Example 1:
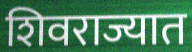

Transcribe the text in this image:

शिवराज्यात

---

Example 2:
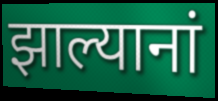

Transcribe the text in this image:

झाल्यानां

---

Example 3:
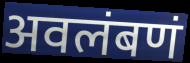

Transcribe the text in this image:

अवलंबणं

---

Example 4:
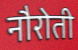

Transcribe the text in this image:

नौरोती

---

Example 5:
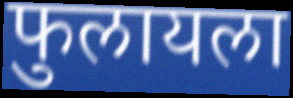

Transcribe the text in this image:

फुलायला